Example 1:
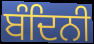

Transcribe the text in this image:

ਬੰਦਿਨੀ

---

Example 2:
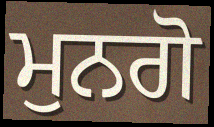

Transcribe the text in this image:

ਮੁਨਗੋ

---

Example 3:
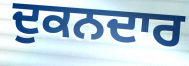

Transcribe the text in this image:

ਦੁਕਨਦਾਰ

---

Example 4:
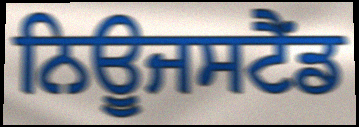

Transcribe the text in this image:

ਨਿਊਜਸਟੈਂਡ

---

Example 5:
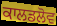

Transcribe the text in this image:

ਕਾਲਡਲੋਵ